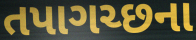
તપાગચ્છના